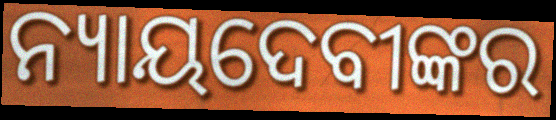
ନ୍ୟାୟଦେବୀଙ୍କର